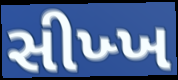
સીખ્ખ